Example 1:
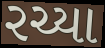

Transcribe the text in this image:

રચ્યા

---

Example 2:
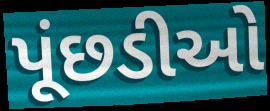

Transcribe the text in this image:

પૂંછડીઓ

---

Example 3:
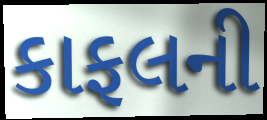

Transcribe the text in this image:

કાફલની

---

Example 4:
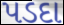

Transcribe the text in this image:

પડદા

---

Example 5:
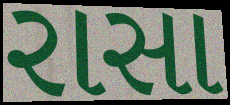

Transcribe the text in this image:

રાસા